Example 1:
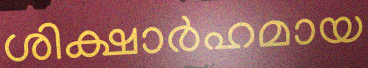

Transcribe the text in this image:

ശിക്ഷാർഹമായ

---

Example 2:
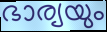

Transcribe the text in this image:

ഭാര്യയും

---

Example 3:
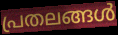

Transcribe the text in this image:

പ്രതലങ്ങൾ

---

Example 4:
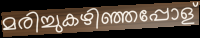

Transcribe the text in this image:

മരിച്ചുകഴിഞ്ഞപ്പോള്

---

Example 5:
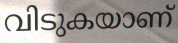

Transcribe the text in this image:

വിടുകയാണ്